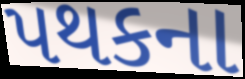
પથકના